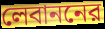
লেবাননের